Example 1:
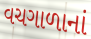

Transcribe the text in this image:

વચગાળાનાં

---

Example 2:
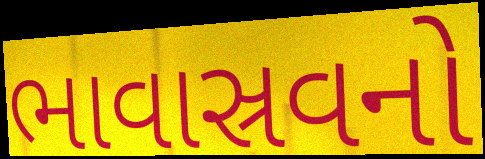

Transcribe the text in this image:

ભાવાસ્રવનો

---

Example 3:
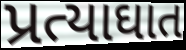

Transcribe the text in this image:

પ્રત્યાઘાત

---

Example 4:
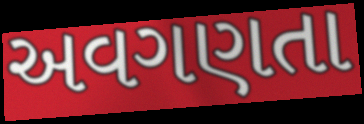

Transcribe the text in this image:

અવગણતા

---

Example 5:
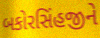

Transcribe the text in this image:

બકોરસિંહજીને